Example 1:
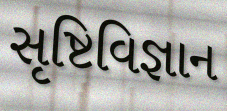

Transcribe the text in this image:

સૃષ્ટિવિજ્ઞાન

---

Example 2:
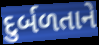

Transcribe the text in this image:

દુર્બળતાને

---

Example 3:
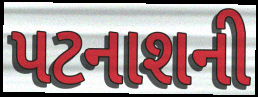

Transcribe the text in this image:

પટનાશની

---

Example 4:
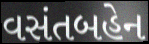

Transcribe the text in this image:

વસંતબહેન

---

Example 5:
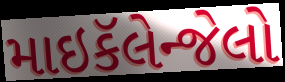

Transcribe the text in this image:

માઇકૅલેન્જેલો